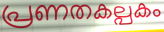
പ്രണതകല്പകം